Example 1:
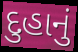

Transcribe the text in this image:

દુહાનું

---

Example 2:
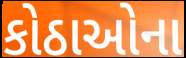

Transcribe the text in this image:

કોઠાઓના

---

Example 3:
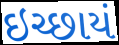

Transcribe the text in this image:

ઇચ્છાયં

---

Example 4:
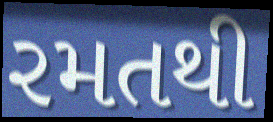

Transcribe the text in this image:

રમતથી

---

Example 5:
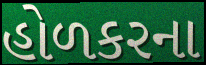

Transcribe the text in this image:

હોળકરના